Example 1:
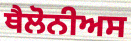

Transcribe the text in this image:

ਥੈਲੋਨੀਅਸ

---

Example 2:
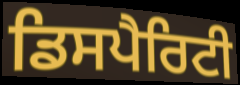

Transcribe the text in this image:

ਡਿਸਪੈਰਿਟੀ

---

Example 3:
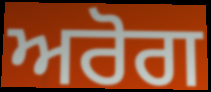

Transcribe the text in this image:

ਅਰੋਗ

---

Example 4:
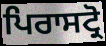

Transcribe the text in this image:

ਪਿਰਾਸਟ੍ਰੋ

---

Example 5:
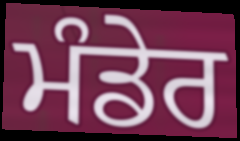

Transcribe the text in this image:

ਮੰਡੇਰ